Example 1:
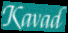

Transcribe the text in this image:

Kavad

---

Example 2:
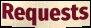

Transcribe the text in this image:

Requests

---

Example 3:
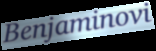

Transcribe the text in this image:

Benjaminovi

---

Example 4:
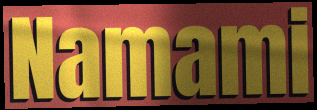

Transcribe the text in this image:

Namami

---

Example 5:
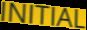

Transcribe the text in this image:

INITIAL